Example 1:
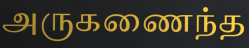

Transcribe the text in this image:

அருகணைந்த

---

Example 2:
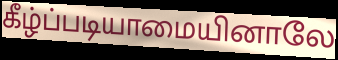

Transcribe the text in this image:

கீழ்ப்படியாமையினாலே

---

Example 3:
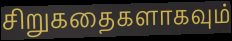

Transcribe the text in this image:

சிறுகதைகளாகவும்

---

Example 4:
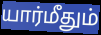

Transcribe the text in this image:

யார்மீதும்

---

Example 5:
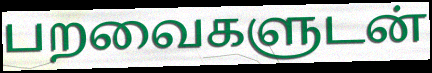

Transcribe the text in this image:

பறவைகளுடன்